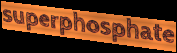
superphosphate